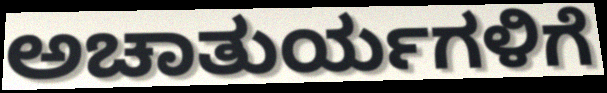
ಅಚಾತುರ್ಯಗಳಿಗೆ